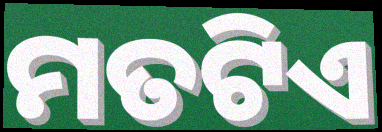
ମତଟିଏ